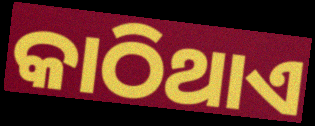
କାଠିଥାଏ